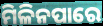
ମିଳିନପାରେ